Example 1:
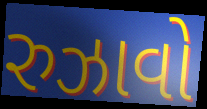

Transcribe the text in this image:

રુઝાવો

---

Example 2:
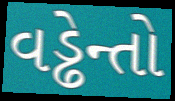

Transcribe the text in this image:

વડ્ઢેન્તો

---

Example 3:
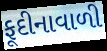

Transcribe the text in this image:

ફૂદીનાવાળી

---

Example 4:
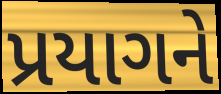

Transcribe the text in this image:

પ્રયાગને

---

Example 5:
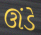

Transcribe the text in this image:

ઊંડે